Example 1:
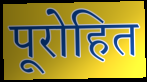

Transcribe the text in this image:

पूरोहित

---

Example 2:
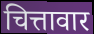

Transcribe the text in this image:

चित्तावार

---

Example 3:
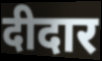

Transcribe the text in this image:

दीदार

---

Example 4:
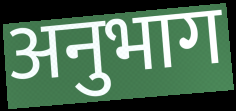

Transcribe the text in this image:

अनुभाग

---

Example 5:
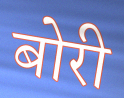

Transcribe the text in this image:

बोरी